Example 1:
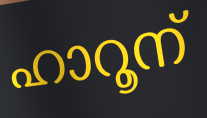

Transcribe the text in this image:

ഹാറൂന്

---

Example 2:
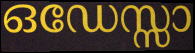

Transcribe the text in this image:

ഒഡേസ്സാ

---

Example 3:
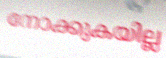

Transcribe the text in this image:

നോക്കുകയില്ല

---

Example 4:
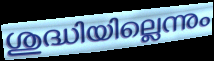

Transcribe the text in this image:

ശുദ്ധിയില്ലെന്നും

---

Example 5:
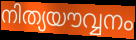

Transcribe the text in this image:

നിത്യയൗവ്വനം